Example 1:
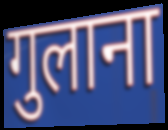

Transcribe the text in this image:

गुलाना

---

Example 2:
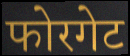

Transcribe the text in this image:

फोरगेट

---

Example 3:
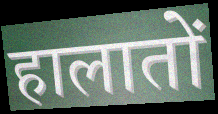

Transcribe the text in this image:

हालातों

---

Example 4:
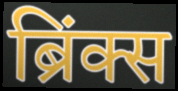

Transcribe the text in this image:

ब्रिंक्स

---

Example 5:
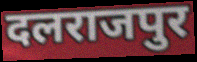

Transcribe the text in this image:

दलराजपुर